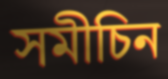
সমীচিন